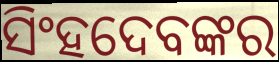
ସିଂହଦେବଙ୍କର